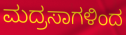
ಮದ್ರಸಾಗಳಿಂದ